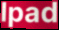
Ipad